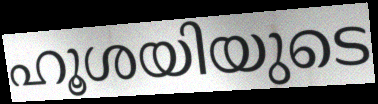
ഹൂശയിയുടെ